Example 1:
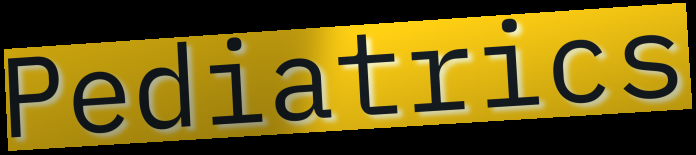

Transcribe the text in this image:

Pediatrics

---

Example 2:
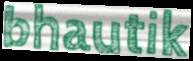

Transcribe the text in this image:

bhautik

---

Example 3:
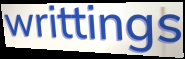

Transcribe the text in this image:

writtings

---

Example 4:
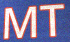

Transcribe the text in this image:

MT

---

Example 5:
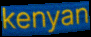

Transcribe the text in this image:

kenyan